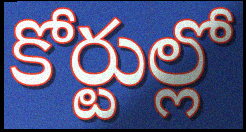
కోర్టుల్లో